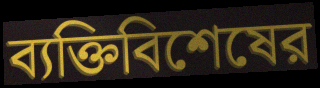
ব্যক্তিবিশেষের